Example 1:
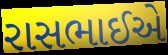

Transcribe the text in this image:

રાસભાઈએ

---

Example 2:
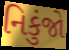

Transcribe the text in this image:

નિકુંજો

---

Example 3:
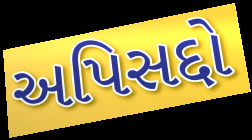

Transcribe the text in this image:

અપિસદ્દો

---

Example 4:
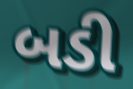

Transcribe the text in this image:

બડી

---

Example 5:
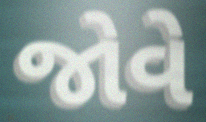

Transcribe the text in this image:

જોવે